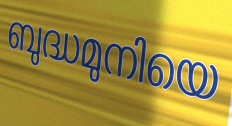
ബുദ്ധമുനിയെ